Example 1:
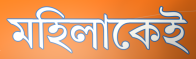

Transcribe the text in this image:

মহিলাকেই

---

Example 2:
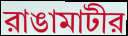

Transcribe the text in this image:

রাঙামাটীর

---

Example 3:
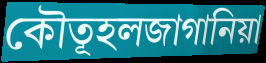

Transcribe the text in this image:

কৌতূহলজাগানিয়া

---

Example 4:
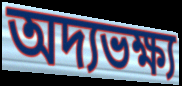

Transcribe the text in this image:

অদ্যভক্ষ্য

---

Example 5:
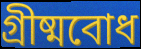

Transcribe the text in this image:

গ্রীষ্মবোধ